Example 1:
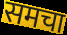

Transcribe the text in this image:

समचा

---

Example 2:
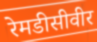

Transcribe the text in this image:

रेमडीसीवीर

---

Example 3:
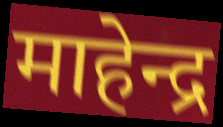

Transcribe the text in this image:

माहेन्द्र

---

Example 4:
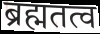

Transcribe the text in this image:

ब्रह्मतत्व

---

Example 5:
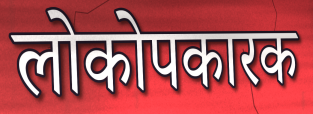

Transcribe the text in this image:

लोकोपकारक